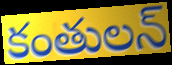
కంతులన్